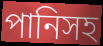
পানিসহ